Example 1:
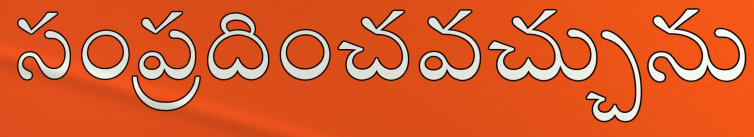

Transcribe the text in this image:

సంప్రదించవచ్చును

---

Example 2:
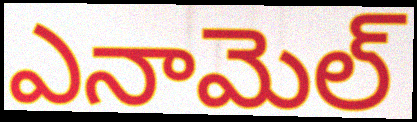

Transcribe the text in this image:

ఎనామెల్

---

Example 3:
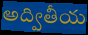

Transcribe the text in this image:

అద్వితీయ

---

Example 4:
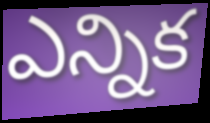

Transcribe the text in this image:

ఎన్నిక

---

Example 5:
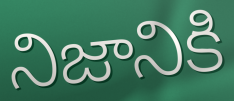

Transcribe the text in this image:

నిజానికి